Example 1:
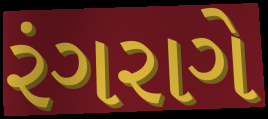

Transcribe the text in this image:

રંગરાગે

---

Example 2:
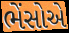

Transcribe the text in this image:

ભેંસોએ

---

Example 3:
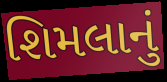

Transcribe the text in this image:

શિમલાનું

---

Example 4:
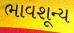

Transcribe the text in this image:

ભાવશૂન્ય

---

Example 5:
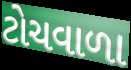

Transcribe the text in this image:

ટોચવાળા